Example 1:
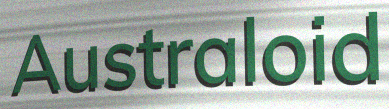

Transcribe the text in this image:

Australoid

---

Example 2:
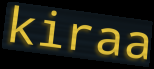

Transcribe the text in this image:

kiraa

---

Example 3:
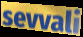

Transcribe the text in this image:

sevvali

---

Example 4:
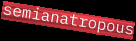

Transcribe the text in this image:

semianatropous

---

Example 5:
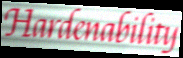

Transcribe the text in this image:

Hardenability